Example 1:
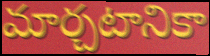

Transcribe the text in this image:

మార్చటానికా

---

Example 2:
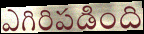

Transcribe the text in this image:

ఎగిరిపడింది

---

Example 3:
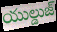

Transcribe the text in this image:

యుల్డుజ్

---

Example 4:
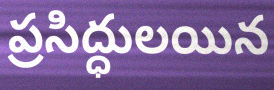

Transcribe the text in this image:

ప్రసిద్ధులయిన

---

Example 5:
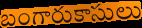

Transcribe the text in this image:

బంగారుకాసులు